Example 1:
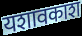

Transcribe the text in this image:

यशावकाश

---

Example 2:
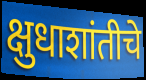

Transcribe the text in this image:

क्षुधाशांतीचे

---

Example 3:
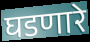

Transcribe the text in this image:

घडणारे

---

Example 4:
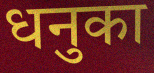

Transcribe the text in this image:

धनुका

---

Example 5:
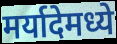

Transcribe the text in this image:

मर्यादेमध्ये